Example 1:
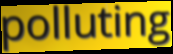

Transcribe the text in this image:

polluting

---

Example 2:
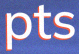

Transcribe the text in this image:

pts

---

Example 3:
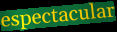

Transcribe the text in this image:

espectacular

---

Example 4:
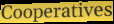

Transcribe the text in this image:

Cooperatives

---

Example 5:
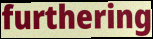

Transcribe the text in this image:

furthering